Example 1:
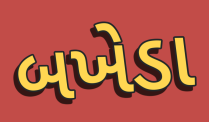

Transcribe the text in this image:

બખેડા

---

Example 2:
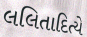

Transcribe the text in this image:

લલિતાદિત્યે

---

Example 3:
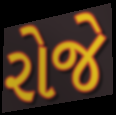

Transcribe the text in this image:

રોજે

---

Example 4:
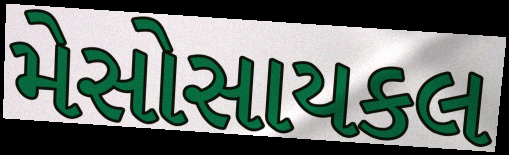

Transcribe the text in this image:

મેસોસાયકલ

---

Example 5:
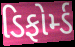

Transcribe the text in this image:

ડિફોર્મ્ડ